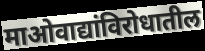
माओवाद्यांविरोधातील